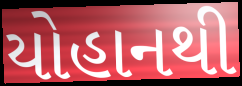
યોહાનથી